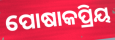
ପୋଷାକପ୍ରିୟ